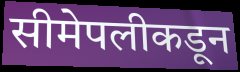
सीमेपलीकडून